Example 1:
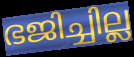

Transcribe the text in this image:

ഭജിച്ചില്ല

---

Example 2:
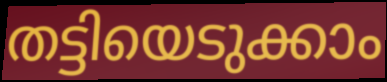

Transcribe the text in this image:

തട്ടിയെടുക്കാം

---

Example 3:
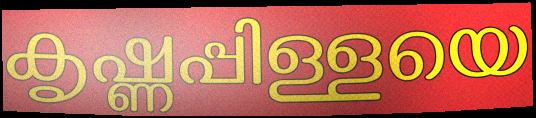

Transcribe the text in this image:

കൃഷ്ണപ്പിള്ളയെ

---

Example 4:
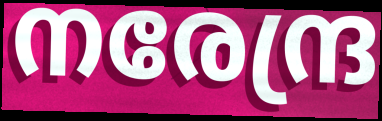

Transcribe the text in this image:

നരേന്ദ്ര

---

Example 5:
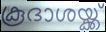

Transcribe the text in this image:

കൂദാശയ്ക്ക്